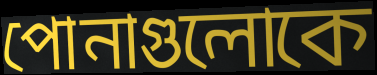
পোনাগুলোকে